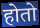
होतो